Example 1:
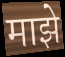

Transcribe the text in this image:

माझे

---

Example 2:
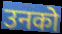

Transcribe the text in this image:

उनको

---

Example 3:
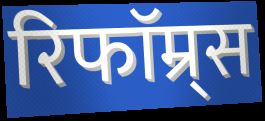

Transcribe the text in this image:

रिफॉम्र्स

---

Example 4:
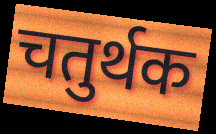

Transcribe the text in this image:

चतुर्थक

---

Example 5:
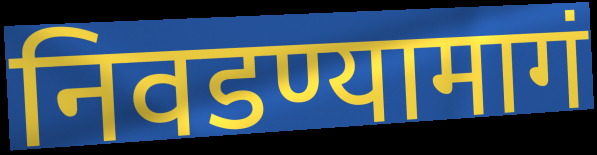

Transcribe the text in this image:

निवडण्यामागं